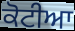
ਕੋਟੀਆ